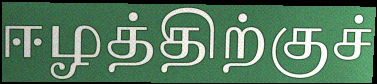
ஈழத்திற்குச்